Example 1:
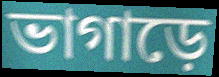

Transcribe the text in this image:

ভাগাড়ে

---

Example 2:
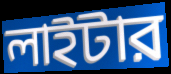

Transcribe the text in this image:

লাইটার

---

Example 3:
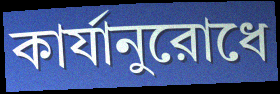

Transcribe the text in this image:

কার্যানুরোধে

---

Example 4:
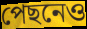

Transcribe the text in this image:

পেছনেও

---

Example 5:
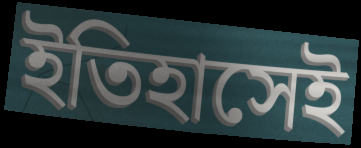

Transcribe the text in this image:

ইতিহাসেই